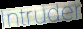
Intruder